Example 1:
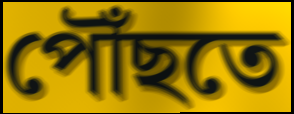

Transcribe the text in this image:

পৌঁছতে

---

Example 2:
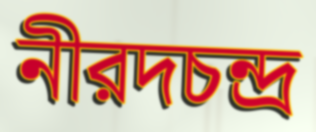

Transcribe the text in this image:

নীরদচন্দ্র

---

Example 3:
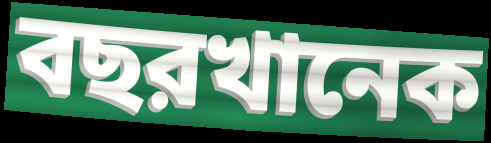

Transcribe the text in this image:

বছরখানেক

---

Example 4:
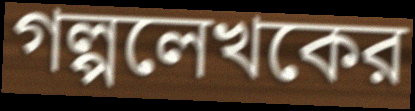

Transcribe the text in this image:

গল্পলেখকের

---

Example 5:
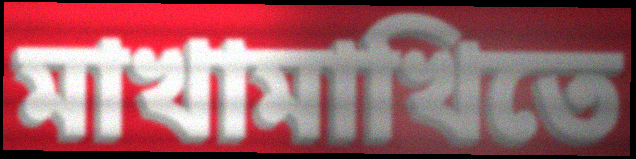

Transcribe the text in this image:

মাখামাখিতে